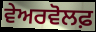
ਵੇਅਰਵੋਲਫ਼